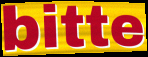
bitte